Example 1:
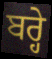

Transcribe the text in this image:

ਬਰ੍ਹੇ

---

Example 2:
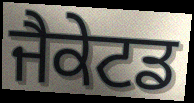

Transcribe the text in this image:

ਜੈਕੇਟਡ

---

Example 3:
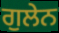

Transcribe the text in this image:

ਗੁਲੇਨ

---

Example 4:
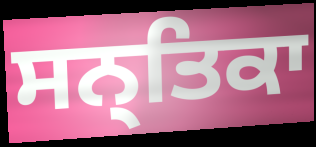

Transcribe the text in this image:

ਸਨ੍ਤਿਕਾ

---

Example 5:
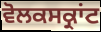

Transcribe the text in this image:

ਵੋਲਕਸਕ੍ਰਾਂਟ